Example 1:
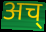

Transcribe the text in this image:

अच्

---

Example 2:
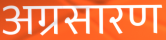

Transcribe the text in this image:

अग्रसारण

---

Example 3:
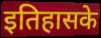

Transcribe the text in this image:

इतिहासके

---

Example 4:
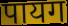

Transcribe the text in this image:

पायग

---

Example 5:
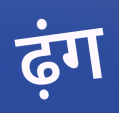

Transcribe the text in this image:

ढ़ंग